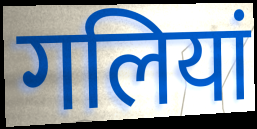
गलियां